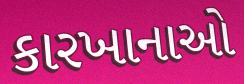
કારખાનાઓ